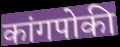
कांगपोकी